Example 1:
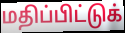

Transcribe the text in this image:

மதிப்பிட்டுக்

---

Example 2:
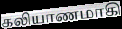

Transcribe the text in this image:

கலியாணமாகி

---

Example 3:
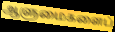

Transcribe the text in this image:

ஆளுமைகளைப்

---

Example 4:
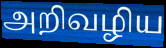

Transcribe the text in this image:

அறிவழிய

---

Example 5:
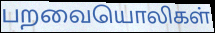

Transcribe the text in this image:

பறவையொலிகள்